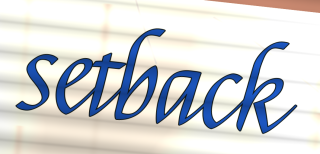
setback